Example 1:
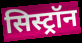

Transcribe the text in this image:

सिस्ट्रॉन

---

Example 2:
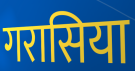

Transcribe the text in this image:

गरासिया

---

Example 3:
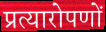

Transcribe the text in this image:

प्रत्यारोपणों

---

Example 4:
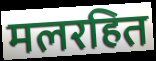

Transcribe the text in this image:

मलरहित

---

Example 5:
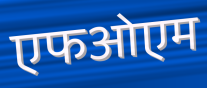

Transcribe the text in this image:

एफओएम